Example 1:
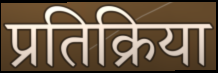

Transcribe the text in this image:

प्रतिक्रिया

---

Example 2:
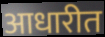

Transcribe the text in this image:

आधारीत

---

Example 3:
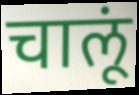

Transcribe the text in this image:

चालूं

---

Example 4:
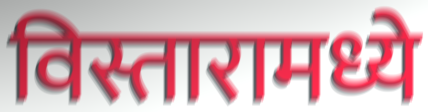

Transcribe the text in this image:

विस्तारामध्ये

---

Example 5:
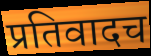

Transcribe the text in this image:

प्रतिवादच